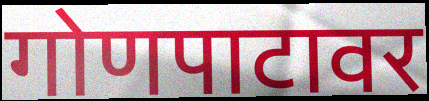
गोणपाटावर